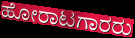
ಹೋರಾಟಗಾರರು